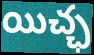
యిచ్ఛ